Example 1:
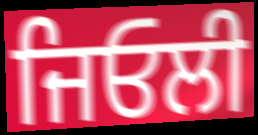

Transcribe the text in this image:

ਜਿਓਲੀ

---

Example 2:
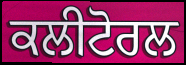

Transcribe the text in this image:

ਕਲੀਟੋਰਲ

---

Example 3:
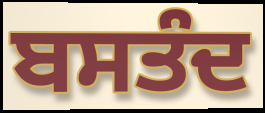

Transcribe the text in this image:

ਬਸਤੰਦ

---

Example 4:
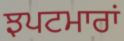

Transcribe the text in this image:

ਝਪਟਮਾਰਾਂ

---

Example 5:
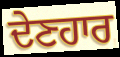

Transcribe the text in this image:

ਦੇਣਹਾਰ